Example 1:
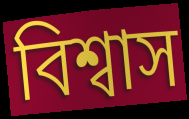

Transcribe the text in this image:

বিশ্বাস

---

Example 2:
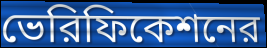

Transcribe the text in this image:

ভেরিফিকেশনের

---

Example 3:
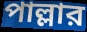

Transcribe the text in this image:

পাল্লার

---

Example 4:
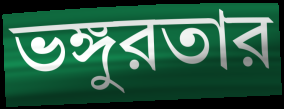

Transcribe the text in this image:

ভঙ্গুরতার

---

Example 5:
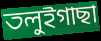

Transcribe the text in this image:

তলুইগাছা